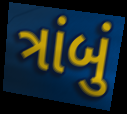
ત્રાંબું